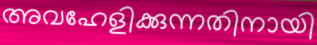
അവഹേളിക്കുന്നതിനായി